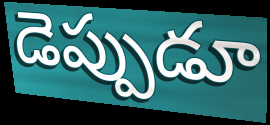
డెప్పుడూ